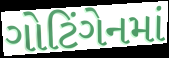
ગોટિંગેનમાં